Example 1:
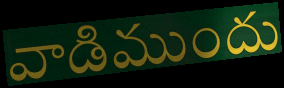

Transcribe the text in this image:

వాడిముందు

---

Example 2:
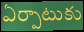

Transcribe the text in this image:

ఏర్పాటుకు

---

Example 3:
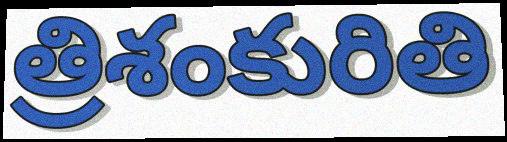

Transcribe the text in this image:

త్రిశంకురితి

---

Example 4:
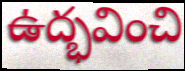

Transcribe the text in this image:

ఉద్భవించి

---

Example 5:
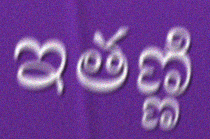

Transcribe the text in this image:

ఇతణ్ణి